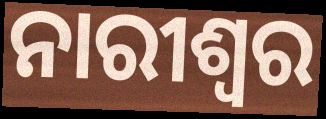
ନାରୀଶ୍ବର